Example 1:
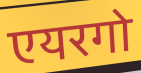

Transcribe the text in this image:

एयरगो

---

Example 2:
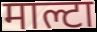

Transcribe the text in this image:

माल्टा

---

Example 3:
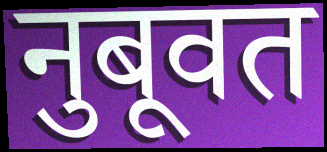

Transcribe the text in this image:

नुबूवत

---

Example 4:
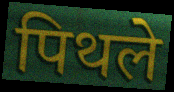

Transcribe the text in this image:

पिथले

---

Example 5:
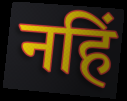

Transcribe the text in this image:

नहिं